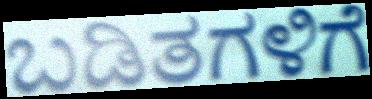
ಬಡಿತಗಳಿಗೆ